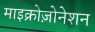
माइक्रोज़ोनेशन